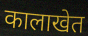
कालाखेत